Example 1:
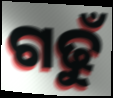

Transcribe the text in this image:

ଗଢୁଁ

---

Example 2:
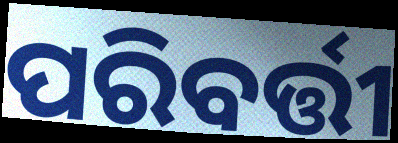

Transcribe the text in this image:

ପରିବର୍ତ୍ତୀ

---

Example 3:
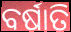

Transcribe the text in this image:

ବର୍ଷାତି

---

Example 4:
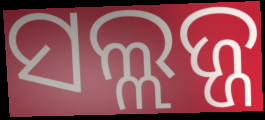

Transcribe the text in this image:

ସଲ୍ଲଜ୍ଜ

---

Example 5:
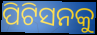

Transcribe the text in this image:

ପିଟିସନକୁ